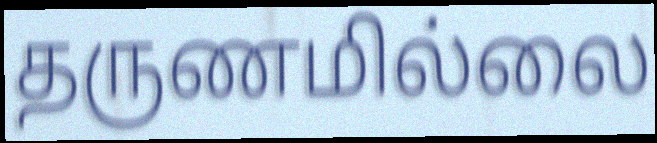
தருணமில்லை